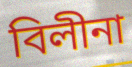
বিলীনা